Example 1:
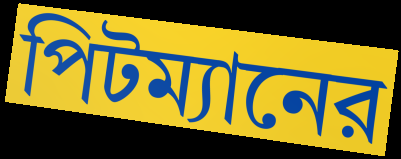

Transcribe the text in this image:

পিটম্যানের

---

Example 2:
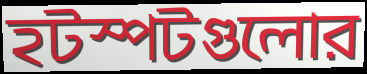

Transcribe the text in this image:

হটস্পটগুলোর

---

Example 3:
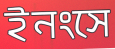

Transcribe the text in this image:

ইনংসে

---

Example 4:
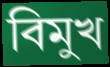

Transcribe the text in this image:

বিমুখ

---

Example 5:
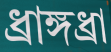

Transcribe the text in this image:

ধ্রাঙ্গধ্রা